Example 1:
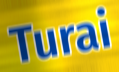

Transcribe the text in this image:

Turai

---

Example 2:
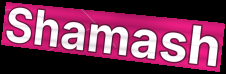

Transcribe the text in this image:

Shamash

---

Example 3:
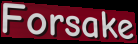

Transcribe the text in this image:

Forsake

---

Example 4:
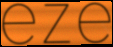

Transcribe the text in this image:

eze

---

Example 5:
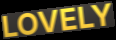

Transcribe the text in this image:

LOVELY